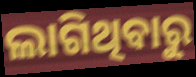
ଲାଗିଥିବାରୁ